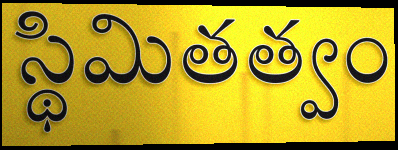
స్థిమితత్వం